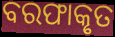
ବରଫାକୃତ